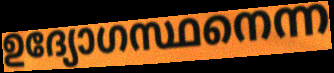
ഉദ്യോഗസ്ഥനെന്ന